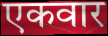
एकवार